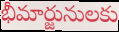
భీమార్జునులకు